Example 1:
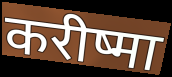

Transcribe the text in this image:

करीष्मा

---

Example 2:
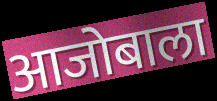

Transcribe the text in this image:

आजोबाला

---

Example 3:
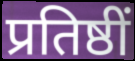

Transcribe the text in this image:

प्रतिष्ठीं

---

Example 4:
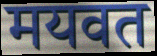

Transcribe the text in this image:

मयवत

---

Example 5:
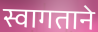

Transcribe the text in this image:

स्वागताने